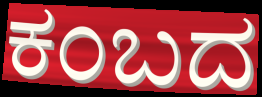
ಕಂಬದ